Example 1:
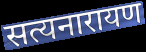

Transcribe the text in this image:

सत्यनारायण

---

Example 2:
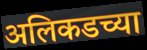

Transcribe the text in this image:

अलिकडच्या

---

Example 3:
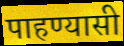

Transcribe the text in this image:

पाहण्यासी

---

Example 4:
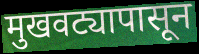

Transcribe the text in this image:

मुखवट्यापासून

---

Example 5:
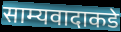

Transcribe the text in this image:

साम्यवादाकडे